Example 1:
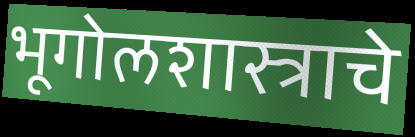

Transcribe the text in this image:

भूगोलशास्त्राचे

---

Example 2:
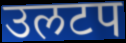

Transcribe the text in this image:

उलटप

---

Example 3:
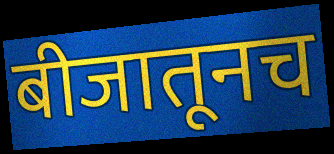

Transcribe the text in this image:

बीजातूनच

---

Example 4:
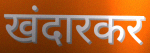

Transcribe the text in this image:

खंदारकर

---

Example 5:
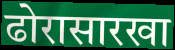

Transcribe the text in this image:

ढोरासारखा